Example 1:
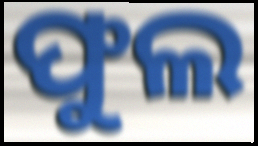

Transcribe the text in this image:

ଫୁଲ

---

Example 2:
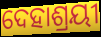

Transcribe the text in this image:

ଦେହାଶ୍ରୟୀ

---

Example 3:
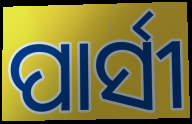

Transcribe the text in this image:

ପାର୍ସୀ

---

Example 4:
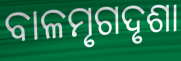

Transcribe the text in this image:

ବାଳମୃଗଦୃଶା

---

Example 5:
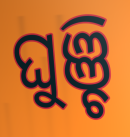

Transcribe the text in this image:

ଘୁଞ୍ଚି